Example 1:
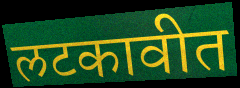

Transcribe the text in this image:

लटकावीत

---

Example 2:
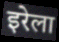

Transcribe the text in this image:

इरेला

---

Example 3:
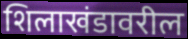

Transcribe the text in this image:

शिलाखंडावरील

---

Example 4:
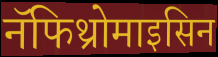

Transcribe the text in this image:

नॅफिथ्रोमाइसिन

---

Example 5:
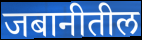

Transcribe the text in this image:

जबानीतील